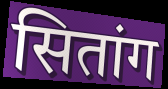
सितांग